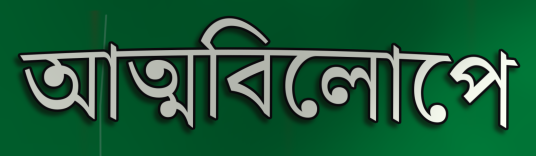
আত্মবিলোপে